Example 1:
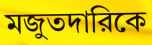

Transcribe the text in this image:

মজুতদারিকে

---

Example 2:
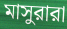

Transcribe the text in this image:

মাসুরারা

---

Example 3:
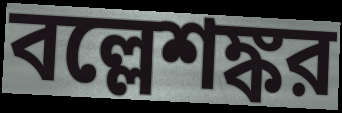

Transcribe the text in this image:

বল্লেশঙ্কর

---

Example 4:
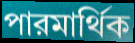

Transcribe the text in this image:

পারমার্থিক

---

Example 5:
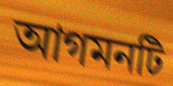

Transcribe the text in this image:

আগমনটি